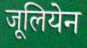
जूलियेन